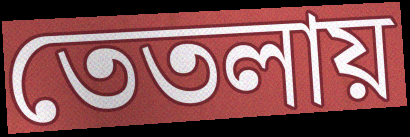
তেতলায়